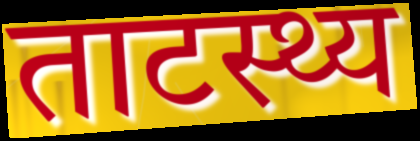
ताटस्थ्य